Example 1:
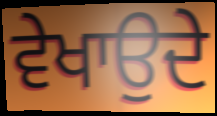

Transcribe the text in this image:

ਵੇਖਾਉਦੇ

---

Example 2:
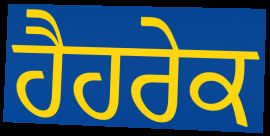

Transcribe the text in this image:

ਹੈਹਰੇਕ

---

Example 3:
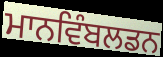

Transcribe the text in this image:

ਮਾਨਵਿੰਬਲਡਨ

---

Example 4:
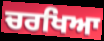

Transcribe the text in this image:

ਚਰਖਿਆ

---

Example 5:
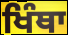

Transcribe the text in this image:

ਖਿੰਥਾ